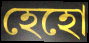
হেহো